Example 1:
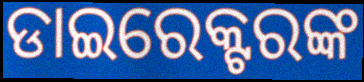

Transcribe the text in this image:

ଡାଇରେକ୍ଟରଙ୍କ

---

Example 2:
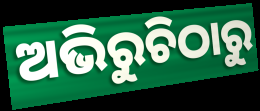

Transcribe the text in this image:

ଅଭିରୁଚିଠାରୁ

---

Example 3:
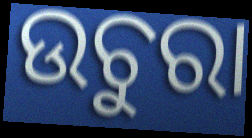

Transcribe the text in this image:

ଉଚୁରା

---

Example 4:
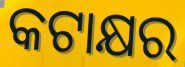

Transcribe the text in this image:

କଟାକ୍ଷର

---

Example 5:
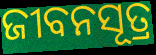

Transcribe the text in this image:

ଜୀବନସୂତ୍ର